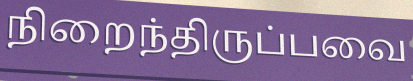
நிறைந்திருப்பவை